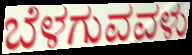
ಬೆಳಗುವವಳು